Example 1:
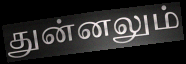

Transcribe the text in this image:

துன்னலும்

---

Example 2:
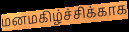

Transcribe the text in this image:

மனமகிழ்ச்சிக்காக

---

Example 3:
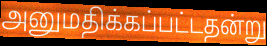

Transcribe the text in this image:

அனுமதிக்கப்பட்டதன்று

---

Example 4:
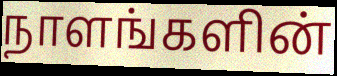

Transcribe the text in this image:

நாளங்களின்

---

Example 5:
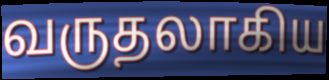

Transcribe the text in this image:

வருதலாகிய